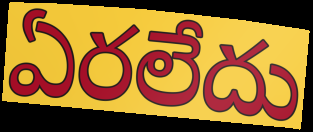
ఏరలేదు